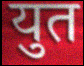
युत